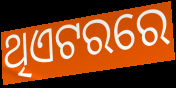
ଥିଏଟରରେ